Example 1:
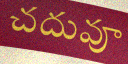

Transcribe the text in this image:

చదువూ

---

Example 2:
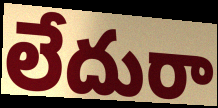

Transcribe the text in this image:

లేదురా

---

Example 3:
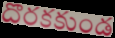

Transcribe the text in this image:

దొరకకుండ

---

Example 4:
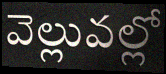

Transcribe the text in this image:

వెల్లువల్లో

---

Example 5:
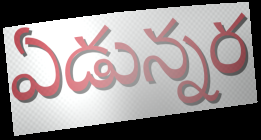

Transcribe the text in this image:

ఏడున్నర